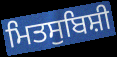
ਮਿਤਸੁਬਿਸ਼ੀ